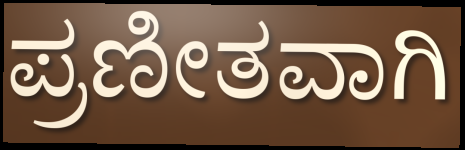
ಪ್ರಣೀತವಾಗಿ